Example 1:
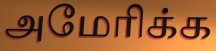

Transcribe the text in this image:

அமேரிக்க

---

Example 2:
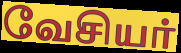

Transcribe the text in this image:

வேசியர்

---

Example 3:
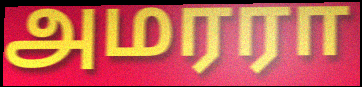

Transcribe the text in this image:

அமரரா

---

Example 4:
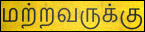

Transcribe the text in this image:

மற்றவருக்கு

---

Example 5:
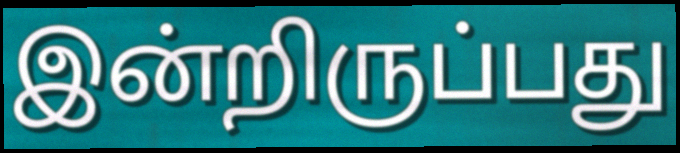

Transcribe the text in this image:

இன்றிருப்பது